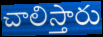
చాలిస్తారు